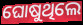
ଘୋଷୁଥିଲେ